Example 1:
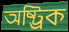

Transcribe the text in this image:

অষ্ট্রিক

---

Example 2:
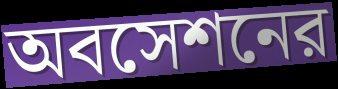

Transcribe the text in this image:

অবসেশনের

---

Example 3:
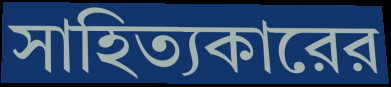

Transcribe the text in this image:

সাহিত্যকারের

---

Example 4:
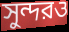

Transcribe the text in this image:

সুন্দরও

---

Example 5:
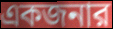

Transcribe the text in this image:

একজনার